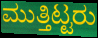
ಮುತ್ತಿಟ್ಟರು